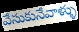
వేసుకునేవాళ్ళు